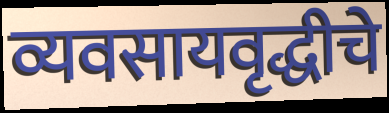
व्यवसायवृद्धीचे